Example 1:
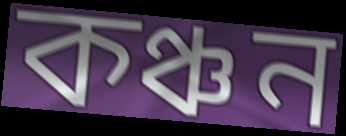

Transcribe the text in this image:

কঞ্চন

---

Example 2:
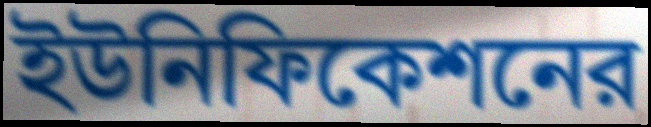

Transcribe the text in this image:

ইউনিফিকেশনের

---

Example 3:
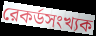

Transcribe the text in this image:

রেকর্ডসংখ্যক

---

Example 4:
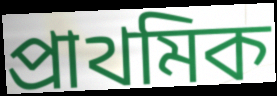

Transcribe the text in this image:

প্রাথমিক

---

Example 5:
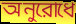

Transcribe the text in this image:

অনুরোধে